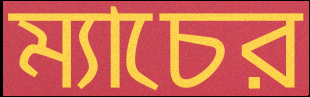
ম্যাচের